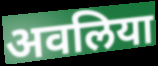
अवलिया